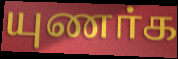
யுணர்க